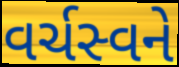
વર્ચસ્વને